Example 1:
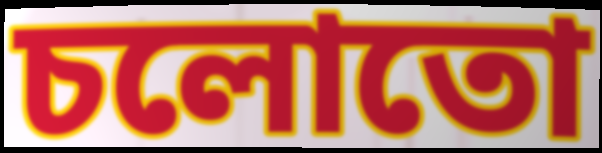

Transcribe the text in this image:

চলোতো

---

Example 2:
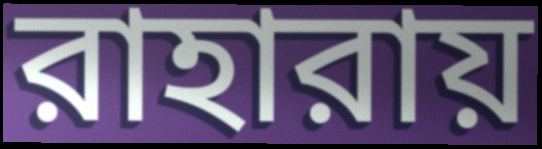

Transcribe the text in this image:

রাহারায়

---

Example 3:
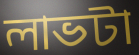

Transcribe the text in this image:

লাভটা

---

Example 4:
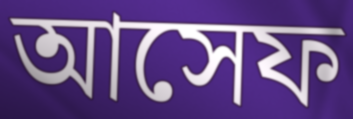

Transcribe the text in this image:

আসেফ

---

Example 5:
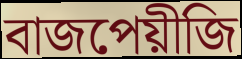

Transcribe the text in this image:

বাজপেয়ীজি